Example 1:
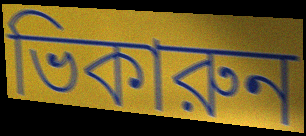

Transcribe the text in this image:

ভিকারুন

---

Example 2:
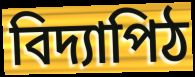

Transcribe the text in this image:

বিদ্যাপিঠ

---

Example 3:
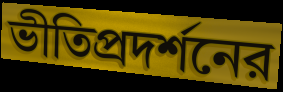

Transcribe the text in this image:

ভীতিপ্রদর্শনের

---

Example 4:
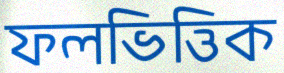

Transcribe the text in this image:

ফলভিত্তিক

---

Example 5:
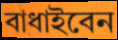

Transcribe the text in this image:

বাধাইবেন